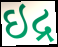
ઇદ્ર